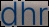
dhr